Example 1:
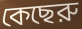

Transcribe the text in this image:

কেছেৰু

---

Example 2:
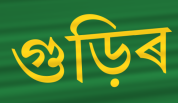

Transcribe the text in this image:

গুড়িৰ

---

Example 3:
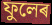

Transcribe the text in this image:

ফুলেৰ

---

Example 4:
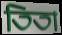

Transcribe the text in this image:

তিতা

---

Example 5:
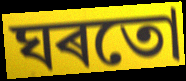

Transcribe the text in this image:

ঘৰতো